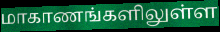
மாகாணங்களிலுள்ள